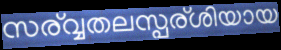
സര്വ്വതലസ്പര്ശിയായ